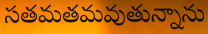
సతమతమవుతున్నాను